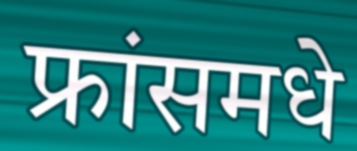
फ्रांसमधे